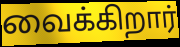
வைக்கிறார்